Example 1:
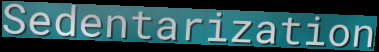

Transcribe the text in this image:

Sedentarization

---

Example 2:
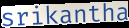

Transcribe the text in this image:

srikantha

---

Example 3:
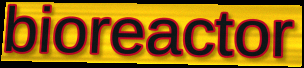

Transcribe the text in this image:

bioreactor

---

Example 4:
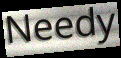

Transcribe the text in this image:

Needy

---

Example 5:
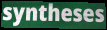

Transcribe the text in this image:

syntheses